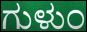
ಗುಳುಂ